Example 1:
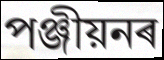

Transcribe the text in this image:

পঞ্জীয়নৰ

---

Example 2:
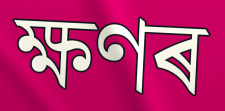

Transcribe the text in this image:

ক্ষণৰ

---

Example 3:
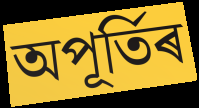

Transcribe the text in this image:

অপূৰ্তিৰ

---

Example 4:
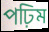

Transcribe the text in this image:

পঢ়িম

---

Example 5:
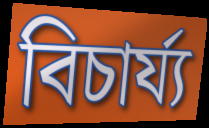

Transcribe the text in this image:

বিচাৰ্য্য